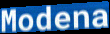
Modena